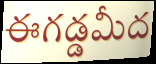
ఈగడ్డమీద